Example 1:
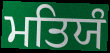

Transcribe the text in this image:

ਮਤਿਯੰ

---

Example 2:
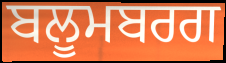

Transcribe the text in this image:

ਬਲੂਮਬਰਗ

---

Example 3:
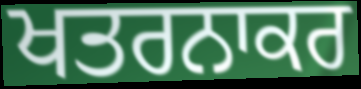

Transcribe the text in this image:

ਖਤਰਨਾਕਰ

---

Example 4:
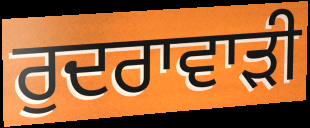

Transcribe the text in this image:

ਰੁਦਰਾਵਾੜੀ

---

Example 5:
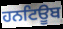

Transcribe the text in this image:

ਹਨਟਿਊਬ